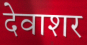
देवाशर